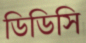
ডিডিসি